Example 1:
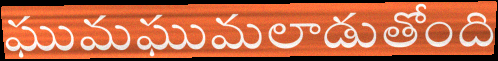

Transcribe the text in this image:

ఘుమఘుమలాడుతోంది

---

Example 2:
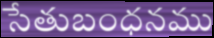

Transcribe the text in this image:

సేతుబంధనము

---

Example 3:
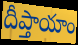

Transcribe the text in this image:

దీప్తాయాం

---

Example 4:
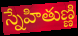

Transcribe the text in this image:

స్నేహితుణ్ణి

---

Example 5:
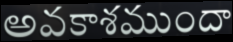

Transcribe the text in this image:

అవకాశముందా